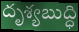
దృశ్యబుద్ధి